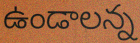
ఉండాలన్న